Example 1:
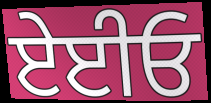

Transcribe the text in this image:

ਏਈਓ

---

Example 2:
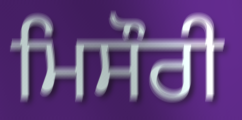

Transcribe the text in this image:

ਮਿਸੌਰੀ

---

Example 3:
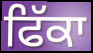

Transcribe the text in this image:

ਫਿੱਕਾ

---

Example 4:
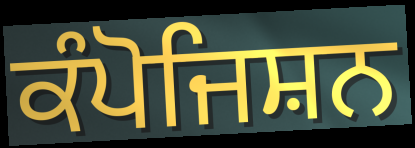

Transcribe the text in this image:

ਕੰਪੋਜਿਸ਼ਨ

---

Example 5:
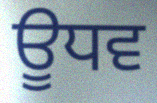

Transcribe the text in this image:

ਊਧਵ